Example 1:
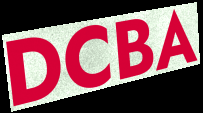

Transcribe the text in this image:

DCBA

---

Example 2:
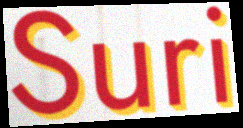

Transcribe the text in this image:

Suri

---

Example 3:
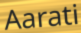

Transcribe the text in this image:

Aarati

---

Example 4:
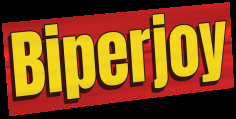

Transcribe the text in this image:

Biperjoy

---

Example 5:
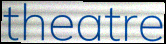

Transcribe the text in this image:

theatre